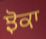
ਝੋਕਾ